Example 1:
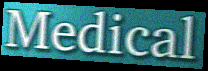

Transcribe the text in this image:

Medical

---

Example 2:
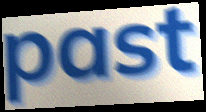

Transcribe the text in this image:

past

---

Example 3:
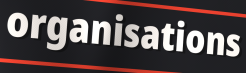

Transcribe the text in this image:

organisations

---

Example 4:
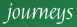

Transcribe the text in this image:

journeys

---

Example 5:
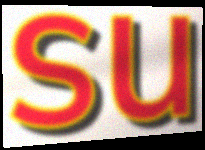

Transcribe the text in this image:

su